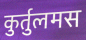
कुर्तुलमस